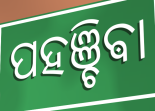
ପହଞ୍ଚିଵା